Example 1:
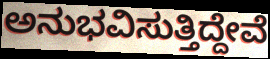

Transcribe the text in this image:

ಅನುಭವಿಸುತ್ತಿದ್ದೇವೆ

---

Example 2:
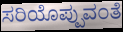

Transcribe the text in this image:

ಸರಿಯೊಪ್ಪುವಂತೆ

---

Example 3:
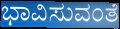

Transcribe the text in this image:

ಭಾವಿಸುವಂತೆ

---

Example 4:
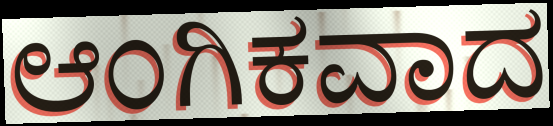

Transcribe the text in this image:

ಆಂಗಿಕವಾದ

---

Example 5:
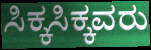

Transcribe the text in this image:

ಸಿಕ್ಕಸಿಕ್ಕವರು